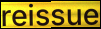
reissue